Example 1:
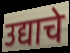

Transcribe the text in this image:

उद्याचे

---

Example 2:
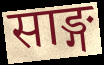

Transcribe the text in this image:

साङ्ग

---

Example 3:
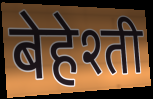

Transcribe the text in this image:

बेहेश्ती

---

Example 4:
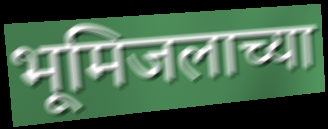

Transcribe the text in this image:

भूमिजलाच्या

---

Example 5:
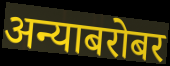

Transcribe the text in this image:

अन्याबरोबर